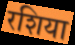
रशिया